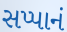
સપ્પાનં